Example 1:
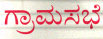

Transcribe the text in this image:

ಗ್ರಾಮಸಭೆ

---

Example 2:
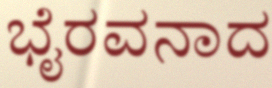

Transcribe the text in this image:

ಭೈರವನಾದ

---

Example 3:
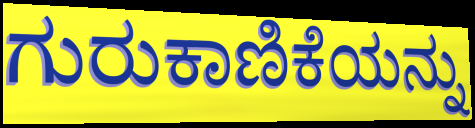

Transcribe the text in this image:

ಗುರುಕಾಣಿಕೆಯನ್ನು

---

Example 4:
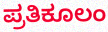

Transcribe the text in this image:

ಪ್ರತಿಕೂಲಂ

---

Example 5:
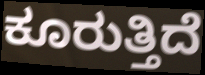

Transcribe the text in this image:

ಕೂರುತ್ತಿದೆ